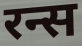
रन्स